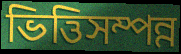
ভিত্তিসম্পন্ন